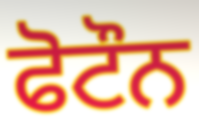
ਫੋਟੌਨ